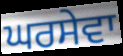
ਘਰਸੇਵਾ